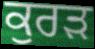
ਕੁਰੜ